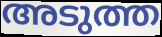
അടുത്ത